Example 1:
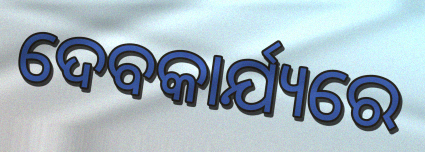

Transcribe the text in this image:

ଦେବକାର୍ଯ୍ୟରେ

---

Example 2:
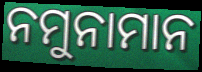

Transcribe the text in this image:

ନମୁନାମାନ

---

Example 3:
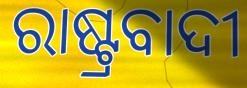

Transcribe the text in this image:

ରାଷ୍ଟ୍ରବାଦୀ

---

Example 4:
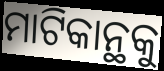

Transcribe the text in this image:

ମାଟିକାନ୍ଥକୁ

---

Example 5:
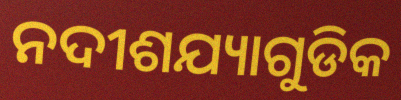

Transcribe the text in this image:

ନଦୀଶଯ୍ୟାଗୁଡିକ